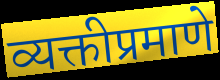
व्यक्तीप्रमाणे